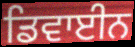
ਡਿਵਾਈਨ